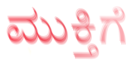
ಮುಕ್ತಿಗೆ